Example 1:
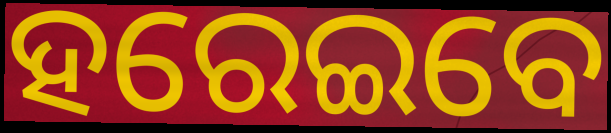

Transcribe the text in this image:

ହରେଇବେ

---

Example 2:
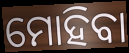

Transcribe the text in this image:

ମୋହିବା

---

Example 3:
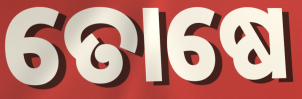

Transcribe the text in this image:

ତୋଷେ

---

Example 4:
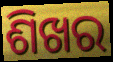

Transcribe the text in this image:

ଶିଖର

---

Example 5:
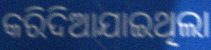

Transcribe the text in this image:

କରିଦିଆଯାଇଥିଲା